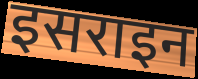
इसराइन